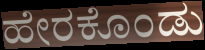
ಹೇರಕೊಂಡು